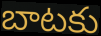
బాటకు